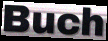
Buch